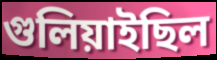
গুলিয়াইছিল